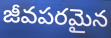
జీవపరమైన